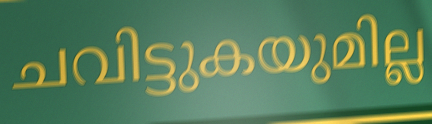
ചവിട്ടുകയുമില്ല